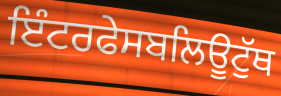
ਇੰਟਰਫੇਸਬਲਿਊਟੁੱਥ